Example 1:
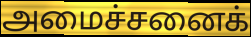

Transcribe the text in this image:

அமைச்சனைக்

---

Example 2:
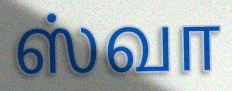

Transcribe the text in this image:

ஸ்வா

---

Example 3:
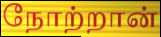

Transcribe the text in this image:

நோற்றான்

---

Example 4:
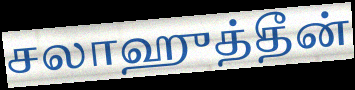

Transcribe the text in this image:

சலாஹுத்தீன்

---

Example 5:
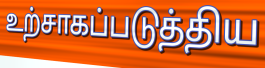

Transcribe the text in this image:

உற்சாகப்படுத்திய